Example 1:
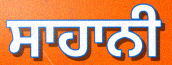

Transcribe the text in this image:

ਸਾਹਾਨੀ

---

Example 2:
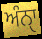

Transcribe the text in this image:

ਅੰਨੑਾ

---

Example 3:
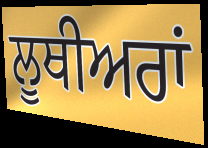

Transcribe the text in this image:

ਲੂਥੀਅਰਾਂ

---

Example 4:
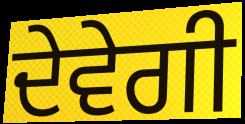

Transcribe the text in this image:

ਦੇਵੇਗੀ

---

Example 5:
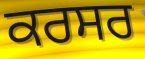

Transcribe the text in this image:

ਕਰਸਰ